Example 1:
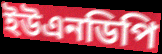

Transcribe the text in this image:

ইউএনডিপি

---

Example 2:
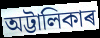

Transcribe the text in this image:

অট্টালিকাৰ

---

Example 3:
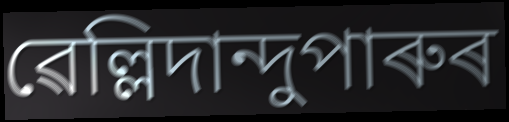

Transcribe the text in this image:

ৱেল্লিদান্দুপাৰুৰ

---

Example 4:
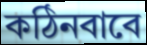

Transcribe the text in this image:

কঠিনবাবে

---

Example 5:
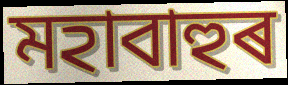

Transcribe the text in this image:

মহাবাহুৰ